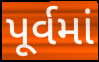
પૂર્વમાં